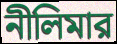
নীলিমার